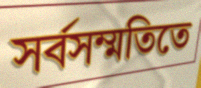
সর্বসম্মতিতে